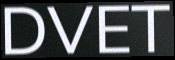
DVET